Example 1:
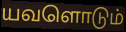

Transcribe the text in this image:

யவளொடும்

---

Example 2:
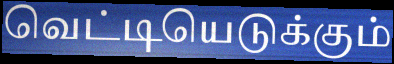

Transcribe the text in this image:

வெட்டியெடுக்கும்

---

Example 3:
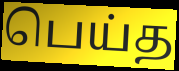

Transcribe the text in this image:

பெய்த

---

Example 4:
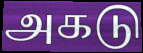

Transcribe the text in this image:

அகடு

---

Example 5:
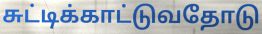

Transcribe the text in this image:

சுட்டிக்காட்டுவதோடு